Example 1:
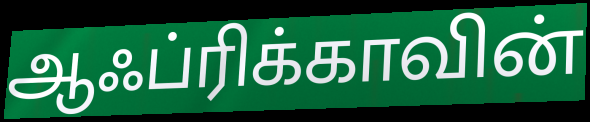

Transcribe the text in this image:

ஆஃப்ரிக்காவின்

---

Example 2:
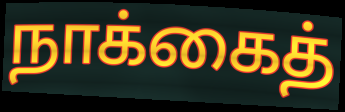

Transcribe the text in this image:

நாக்கைத்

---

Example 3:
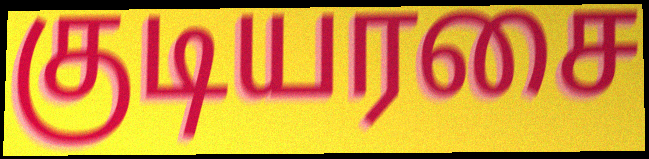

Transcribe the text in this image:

குடியரசை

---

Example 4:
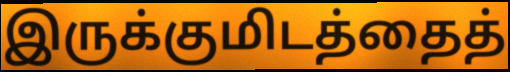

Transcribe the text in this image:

இருக்குமிடத்தைத்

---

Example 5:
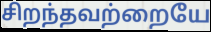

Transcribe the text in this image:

சிறந்தவற்றையே